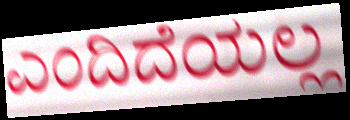
ಎಂದಿದೆಯಲ್ಲ